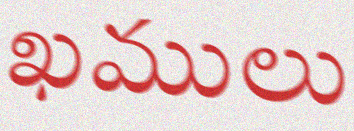
ఖములు